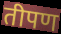
तीपण